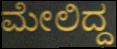
ಮೇಲಿದ್ದ